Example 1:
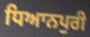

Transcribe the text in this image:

ਧਿਆਨਪੁਰੀ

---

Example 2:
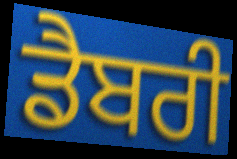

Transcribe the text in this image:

ਡੈਬਰੀ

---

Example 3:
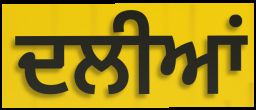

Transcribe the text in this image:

ਦਲੀਆਂ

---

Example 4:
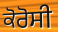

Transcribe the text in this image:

ਕੋਰੋਸੀ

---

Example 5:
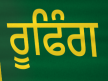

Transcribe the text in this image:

ਰੂਫਿੰਗ